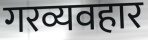
गरव्यवहार